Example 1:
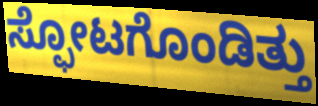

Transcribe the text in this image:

ಸ್ಫೋಟಗೊಂಡಿತ್ತು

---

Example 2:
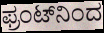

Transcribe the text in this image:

ಫ್ರಂಟ್‌ನಿಂದ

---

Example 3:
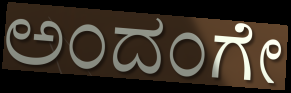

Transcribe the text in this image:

ಅಂದಂಗೇ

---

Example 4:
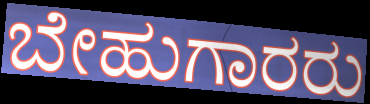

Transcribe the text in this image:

ಬೇಹುಗಾರರು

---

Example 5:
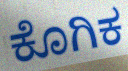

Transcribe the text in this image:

ಕೊಗಿಕ